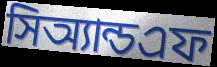
সিঅ্যান্ডএফ